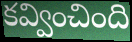
కవ్వించింది